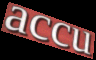
accu